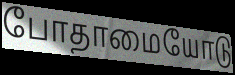
போதாமையோடு